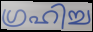
ഗ്രഹിച്ച